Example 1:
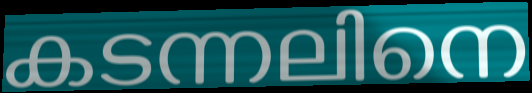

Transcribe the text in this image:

കടന്നലിനെ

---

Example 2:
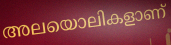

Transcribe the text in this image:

അലയൊലികളാണ്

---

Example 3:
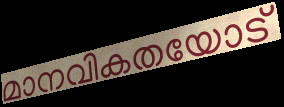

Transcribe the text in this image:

മാനവികതയോട്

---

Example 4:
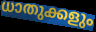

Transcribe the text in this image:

ധാതുക്കളും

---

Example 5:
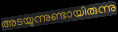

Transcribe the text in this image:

അടയുന്നുണ്ടായിരുന്നു